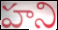
హని